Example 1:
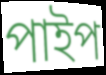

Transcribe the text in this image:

পাইপ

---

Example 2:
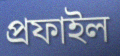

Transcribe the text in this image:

প্ৰফাইল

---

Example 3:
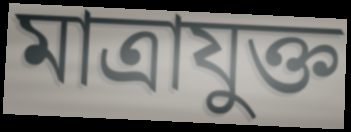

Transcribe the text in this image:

মাত্ৰাযুক্ত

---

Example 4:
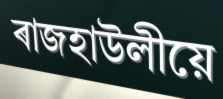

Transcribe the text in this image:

ৰাজহাউলীয়ে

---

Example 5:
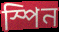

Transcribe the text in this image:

স্পিন